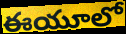
ఈయూలో